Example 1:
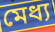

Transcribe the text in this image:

মেধ্য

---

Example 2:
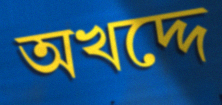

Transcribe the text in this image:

অখদ্দে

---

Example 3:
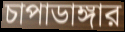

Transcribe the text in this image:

চাপাডাঙ্গার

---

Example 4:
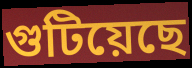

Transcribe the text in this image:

গুটিয়েছে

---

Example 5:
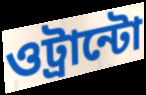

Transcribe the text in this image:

ওট্রান্টো